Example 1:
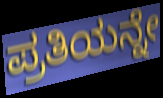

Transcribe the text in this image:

ಪ್ರತಿಯನ್ನೇ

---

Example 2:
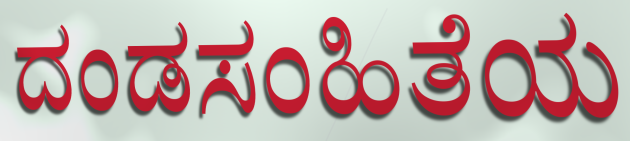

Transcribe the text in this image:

ದಂಡಸಂಹಿತೆಯ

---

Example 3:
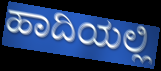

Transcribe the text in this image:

ಹಾದಿಯಲ್ಲಿ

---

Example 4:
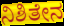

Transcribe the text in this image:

ನಿಶಿತೇನ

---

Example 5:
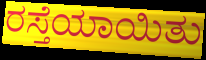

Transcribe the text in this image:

ರಸ್ತೆಯಾಯಿತು